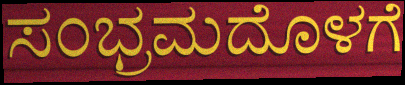
ಸಂಭ್ರಮದೊಳಗೆ